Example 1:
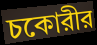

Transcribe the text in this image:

চকোরীর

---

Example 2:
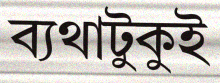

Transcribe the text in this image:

ব্যথাটুকুই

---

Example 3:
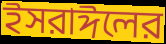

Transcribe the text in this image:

ইসরাঈলের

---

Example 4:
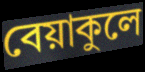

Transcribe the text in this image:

বেয়াকুলে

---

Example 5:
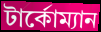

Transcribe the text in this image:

টার্কোম্যান